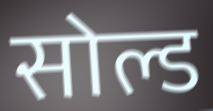
सोल्ड